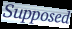
Supposed